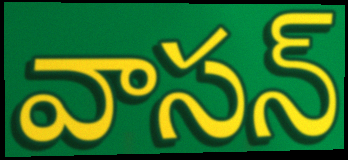
వాసన్